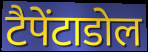
टैपेंटाडोल